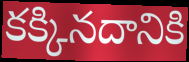
కక్కినదానికి